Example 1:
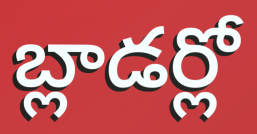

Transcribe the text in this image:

బ్లాడర్లో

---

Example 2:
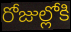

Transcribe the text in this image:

రోజుల్లోకి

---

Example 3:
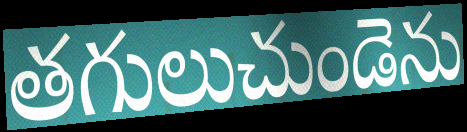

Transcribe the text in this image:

తగులుచుండెను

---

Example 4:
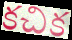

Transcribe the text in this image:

కచిక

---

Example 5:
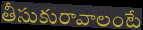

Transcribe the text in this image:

తీసుకురావాలంటే